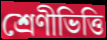
শ্রেণীভিত্তি